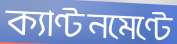
ক্যাণ্টনমেণ্টে